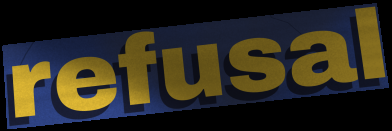
refusal